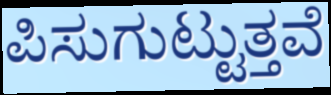
ಪಿಸುಗುಟ್ಟುತ್ತವೆ